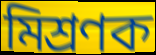
মিশ্ৰণক